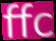
ffc